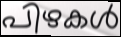
പിഴകൾ